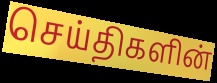
செய்திகளின்